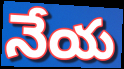
నేయ